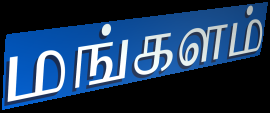
மங்களம்